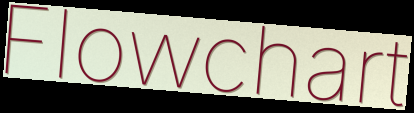
Flowchart